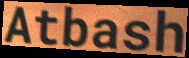
Atbash